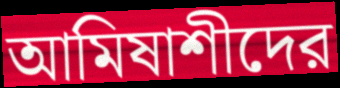
আমিষাশীদের